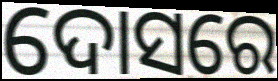
ଦୋସରେ